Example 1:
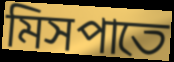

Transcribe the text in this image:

মিসপাতে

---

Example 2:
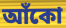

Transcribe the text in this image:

আঁকো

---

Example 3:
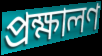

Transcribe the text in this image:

প্রক্ষালণ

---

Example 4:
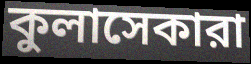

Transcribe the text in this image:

কুলাসেকারা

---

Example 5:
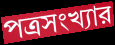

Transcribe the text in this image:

পত্রসংখ্যার